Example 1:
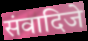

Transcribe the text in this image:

संवादिजे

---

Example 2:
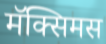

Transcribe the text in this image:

मॅक्सिमस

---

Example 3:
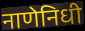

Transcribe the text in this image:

नाणेनिधी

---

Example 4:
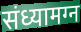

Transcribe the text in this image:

संध्यामग्न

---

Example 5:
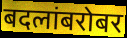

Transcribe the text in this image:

बदलांबरोबर